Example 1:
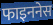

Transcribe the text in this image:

फाइननेस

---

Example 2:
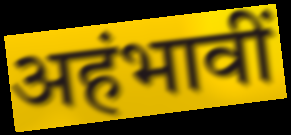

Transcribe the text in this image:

अहंभावीं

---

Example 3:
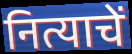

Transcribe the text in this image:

नित्याचें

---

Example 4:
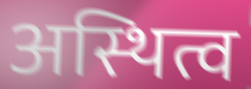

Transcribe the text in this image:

अस्थित्व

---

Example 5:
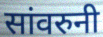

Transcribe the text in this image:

सांवरुनी